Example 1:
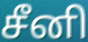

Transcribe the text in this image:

சீனி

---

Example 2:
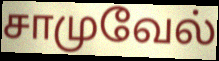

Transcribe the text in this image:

சாமுவேல்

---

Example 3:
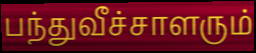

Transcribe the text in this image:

பந்துவீச்சாளரும்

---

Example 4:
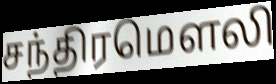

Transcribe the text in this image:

சந்திரமௌலி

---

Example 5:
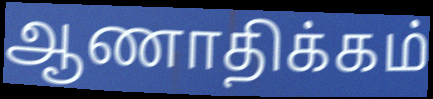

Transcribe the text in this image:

ஆணாதிக்கம்